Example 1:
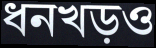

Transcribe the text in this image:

ধনখড়ও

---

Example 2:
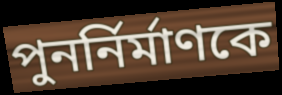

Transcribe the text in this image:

পুনর্নির্মাণকে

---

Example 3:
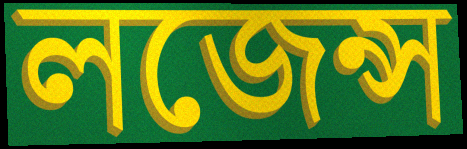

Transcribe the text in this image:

লজেন্স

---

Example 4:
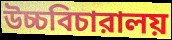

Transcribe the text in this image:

উচ্চবিচারালয়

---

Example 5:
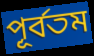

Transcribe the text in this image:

পূর্বতম